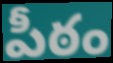
పీఠం